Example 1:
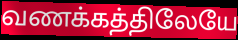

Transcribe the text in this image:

வணக்கத்திலேயே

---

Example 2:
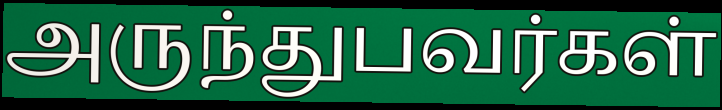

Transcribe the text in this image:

அருந்துபவர்கள்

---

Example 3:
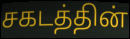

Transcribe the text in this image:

சகடத்தின்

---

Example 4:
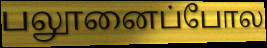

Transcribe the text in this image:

பலூனைப்போல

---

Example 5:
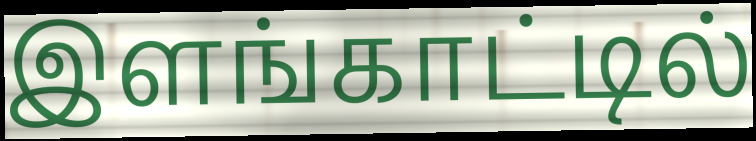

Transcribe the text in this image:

இளங்காட்டில்